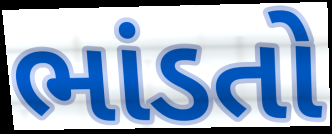
ભાંડતો